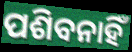
ପଶିବନାହିଁ